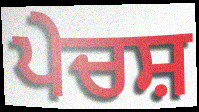
ਪੇਚਸ਼